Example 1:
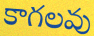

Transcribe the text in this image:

కాగలవు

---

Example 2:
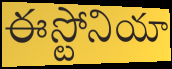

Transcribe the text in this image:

ఈస్టోనియా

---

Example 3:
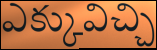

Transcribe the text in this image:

ఎక్కువిచ్చి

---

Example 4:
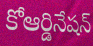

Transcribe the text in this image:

కోఆర్డినేషన్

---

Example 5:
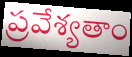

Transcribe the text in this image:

ప్రవేశ్యతాం